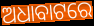
ଅଧାବାଟରେ